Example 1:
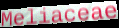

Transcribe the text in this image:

Meliaceae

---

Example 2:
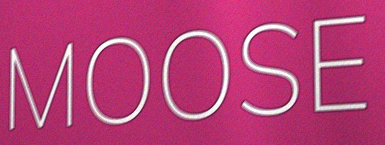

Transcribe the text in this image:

MOOSE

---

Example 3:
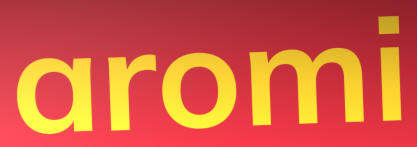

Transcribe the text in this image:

aromi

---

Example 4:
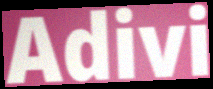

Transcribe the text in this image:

Adivi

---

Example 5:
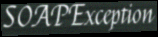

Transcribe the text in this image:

SOAPException